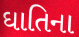
ઘાતિના